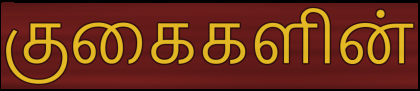
குகைகளின்